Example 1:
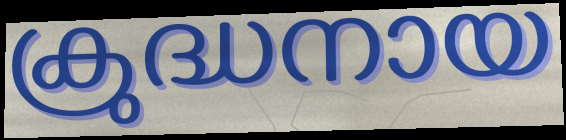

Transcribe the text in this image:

ക്രുദ്ധനായ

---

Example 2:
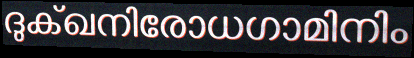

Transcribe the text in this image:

ദുക്ഖനിരോധഗാമിനിം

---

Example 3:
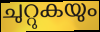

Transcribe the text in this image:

ചുറ്റുകയും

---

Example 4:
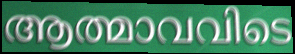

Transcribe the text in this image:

ആത്മാവവിടെ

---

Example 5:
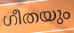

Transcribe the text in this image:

ഗീതയും